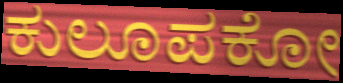
ಕುಲೂಪಕೋ